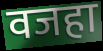
वजहा